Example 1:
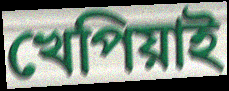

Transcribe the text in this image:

খেপিয়াই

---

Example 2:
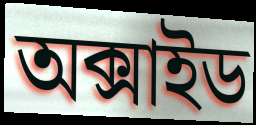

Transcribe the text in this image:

অক্সাইড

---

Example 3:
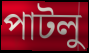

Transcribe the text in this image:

পাটলু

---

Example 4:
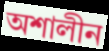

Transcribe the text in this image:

অশালীন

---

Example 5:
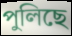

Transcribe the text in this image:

পুলিছে